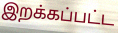
இறக்கப்பட்ட